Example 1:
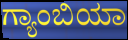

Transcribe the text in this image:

ಗ್ಯಾಂಬಿಯಾ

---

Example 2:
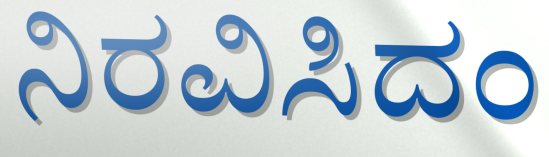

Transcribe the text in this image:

ನಿರವಿಸಿದಂ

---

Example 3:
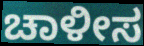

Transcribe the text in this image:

ಚಾಳೀಸ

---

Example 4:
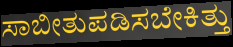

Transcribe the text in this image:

ಸಾಬೀತುಪಡಿಸಬೇಕಿತ್ತು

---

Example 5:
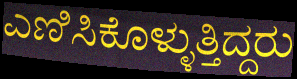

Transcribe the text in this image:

ಎಣಿಸಿಕೊಳ್ಳುತ್ತಿದ್ದರು